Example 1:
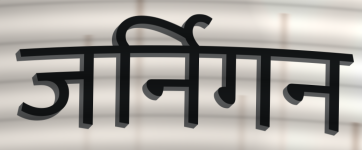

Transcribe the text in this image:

जर्निगन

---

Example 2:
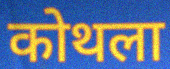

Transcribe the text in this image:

कोथला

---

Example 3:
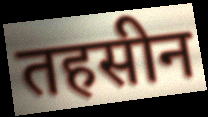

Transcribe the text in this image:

तहसीन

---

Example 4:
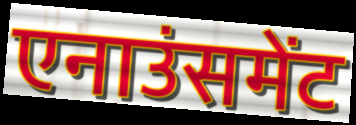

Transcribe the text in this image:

एनाउंसमेंट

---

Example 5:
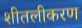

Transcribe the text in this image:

शीतलीकरण